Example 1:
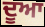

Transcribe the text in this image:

ਦੂਆ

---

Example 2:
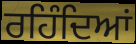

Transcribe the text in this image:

ਰਹਿੰਦਿਆਂ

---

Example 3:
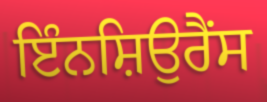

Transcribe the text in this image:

ਇੰਨਸ਼ਿਉਰੈਂਸ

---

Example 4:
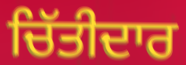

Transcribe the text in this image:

ਚਿੱਤੀਦਾਰ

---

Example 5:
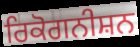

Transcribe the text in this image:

ਰਿਕੋਗਨੀਸ਼ਨ